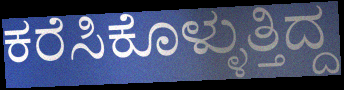
ಕರೆಸಿಕೊಳ್ಳುತ್ತಿದ್ದ